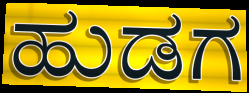
ಹುಡಗ